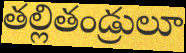
తల్లితండ్రులూ